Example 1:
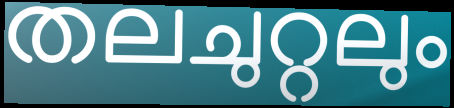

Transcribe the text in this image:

തലചുറ്റലും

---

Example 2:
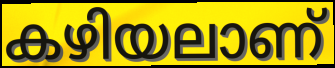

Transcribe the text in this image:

കഴിയലാണ്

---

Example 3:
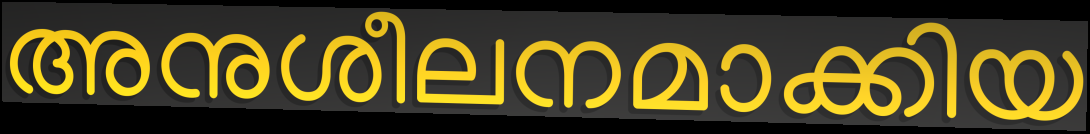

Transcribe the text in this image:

അനുശീലനമാക്കിയ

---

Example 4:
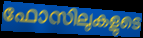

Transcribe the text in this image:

ഫോസിലുകളുടെ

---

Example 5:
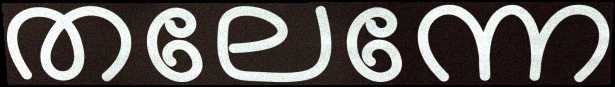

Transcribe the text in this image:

തലേന്നേ